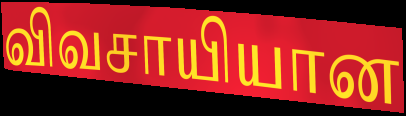
விவசாயியான